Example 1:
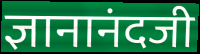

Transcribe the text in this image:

ज्ञानानंदजी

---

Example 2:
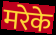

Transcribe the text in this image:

मरेके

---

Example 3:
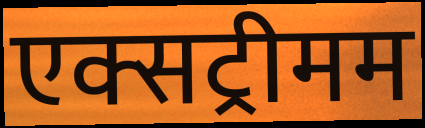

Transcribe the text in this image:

एक्सट्रीमम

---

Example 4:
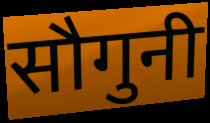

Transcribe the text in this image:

सौगुनी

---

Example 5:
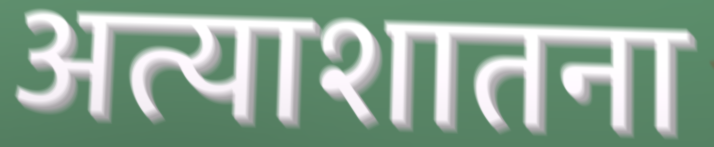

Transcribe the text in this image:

अत्याशातना